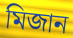
মিজান